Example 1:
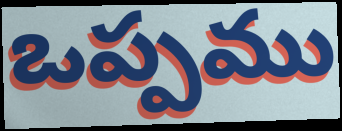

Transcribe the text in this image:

ఒప్పము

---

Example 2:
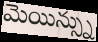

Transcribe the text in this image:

మెయిన్స్ను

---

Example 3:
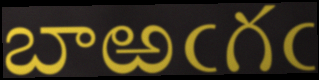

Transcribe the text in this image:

బాఱఁగఁ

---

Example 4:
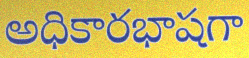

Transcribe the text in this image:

అధికారభాషగా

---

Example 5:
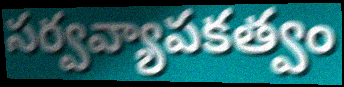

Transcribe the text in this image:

సర్వవ్యాపకత్వం